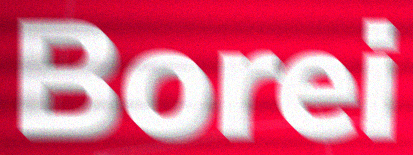
Borei